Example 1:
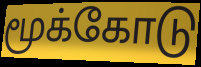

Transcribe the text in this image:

மூக்கோடு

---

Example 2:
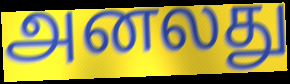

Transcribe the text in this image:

அனலது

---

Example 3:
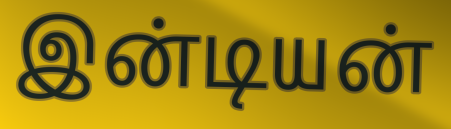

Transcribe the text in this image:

இன்டியன்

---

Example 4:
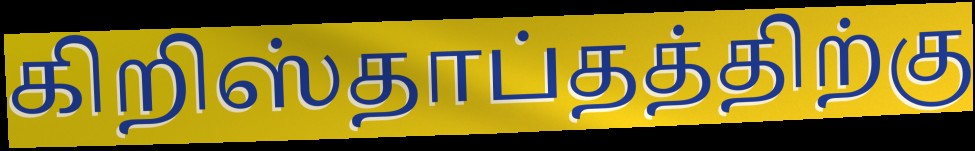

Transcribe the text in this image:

கிறிஸ்தாப்தத்திற்கு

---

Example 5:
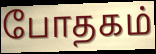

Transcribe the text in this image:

போதகம்